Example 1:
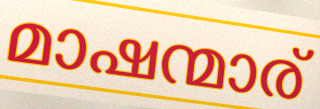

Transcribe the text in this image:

മാഷന്മാര്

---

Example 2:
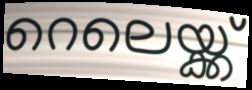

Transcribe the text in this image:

റെലെയ്ക്ക്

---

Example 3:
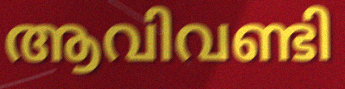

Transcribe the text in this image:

ആവിവണ്ടി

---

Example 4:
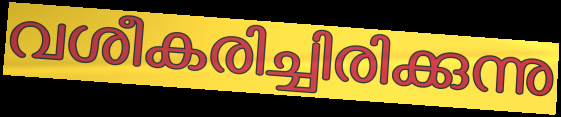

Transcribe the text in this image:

വശീകരിച്ചിരിക്കുന്നു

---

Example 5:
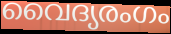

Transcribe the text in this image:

വൈദ്യരംഗം